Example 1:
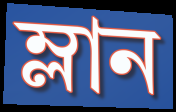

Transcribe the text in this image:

ম্লান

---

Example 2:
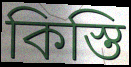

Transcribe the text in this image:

কিস্তি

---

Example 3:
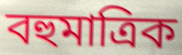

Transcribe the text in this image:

বহুমাত্ৰিক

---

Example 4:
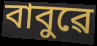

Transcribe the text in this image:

বাবুৱে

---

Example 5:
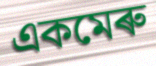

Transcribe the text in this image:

একমেৰু